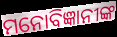
ମନୋବିଜ୍ଞାନୀଙ୍କ